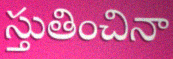
స్తుతించినా